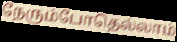
நேரும்போதெல்லாம்